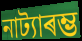
নাট্যাৰম্ভ